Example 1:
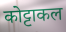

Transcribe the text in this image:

कोट्टाकल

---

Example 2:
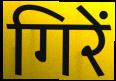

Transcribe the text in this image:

गिरें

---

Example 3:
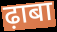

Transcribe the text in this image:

ढ़ाबा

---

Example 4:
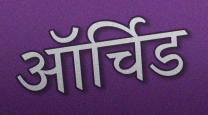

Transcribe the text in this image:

ऑर्चिड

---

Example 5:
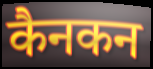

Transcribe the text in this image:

कैनकन